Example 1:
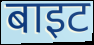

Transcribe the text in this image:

बाइट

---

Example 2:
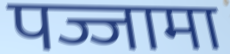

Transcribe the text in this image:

पज्जामा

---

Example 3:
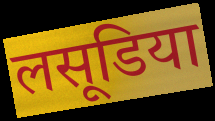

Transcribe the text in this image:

लसूडिया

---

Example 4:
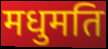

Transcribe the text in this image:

मधुमति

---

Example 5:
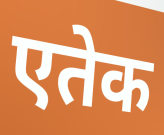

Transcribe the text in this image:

एतेक